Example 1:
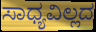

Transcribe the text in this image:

ಸಾಧ್ಯವಿಲ್ಲದ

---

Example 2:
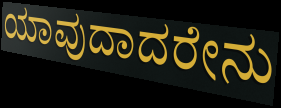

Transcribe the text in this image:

ಯಾವುದಾದರೇನು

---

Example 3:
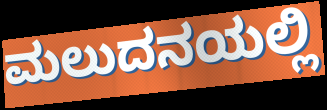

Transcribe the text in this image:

ಮಲುದನಯಲ್ಲಿ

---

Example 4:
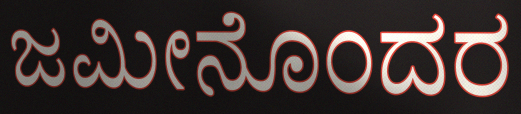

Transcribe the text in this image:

ಜಮೀನೊಂದರ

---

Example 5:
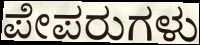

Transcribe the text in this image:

ಪೇಪರುಗಳು